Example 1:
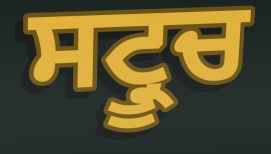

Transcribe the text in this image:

ਸਟ੍ਰੂਚ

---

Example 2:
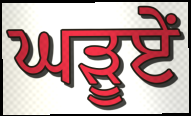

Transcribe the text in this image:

ਘੜੂਏਂ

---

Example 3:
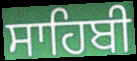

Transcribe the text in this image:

ਸਾਹਿਬੀ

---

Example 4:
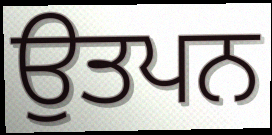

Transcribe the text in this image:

ਉਤਪਨ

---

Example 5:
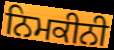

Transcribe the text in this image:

ਨਿਮਕੀਨੀ